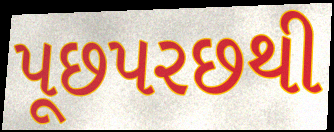
પૂછપરછથી